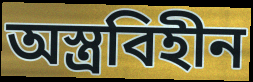
অস্ত্রবিহীন